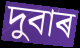
দুবাৰ